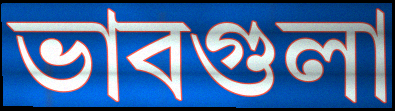
ভাবগুলা